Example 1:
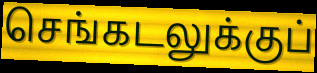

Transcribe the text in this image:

செங்கடலுக்குப்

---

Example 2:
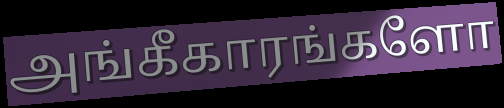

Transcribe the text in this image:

அங்கீகாரங்களோ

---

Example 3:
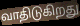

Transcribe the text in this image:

வாதிடுகிறது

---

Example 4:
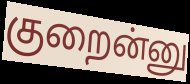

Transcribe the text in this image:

குறைன்னு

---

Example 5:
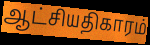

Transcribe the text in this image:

ஆட்சியதிகாரம்